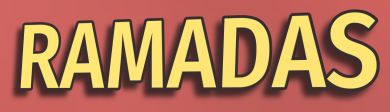
RAMADAS